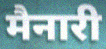
मैनारी